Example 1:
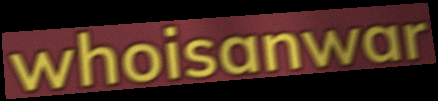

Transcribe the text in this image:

whoisanwar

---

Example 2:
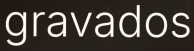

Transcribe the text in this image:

gravados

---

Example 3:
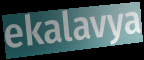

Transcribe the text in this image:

ekalavya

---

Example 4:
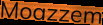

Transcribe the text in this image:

Moazzem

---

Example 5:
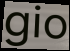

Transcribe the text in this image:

gio